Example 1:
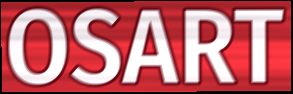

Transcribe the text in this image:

OSART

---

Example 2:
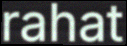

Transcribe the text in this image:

rahat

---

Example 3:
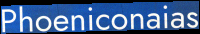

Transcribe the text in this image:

Phoeniconaias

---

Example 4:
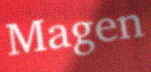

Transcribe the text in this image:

Magen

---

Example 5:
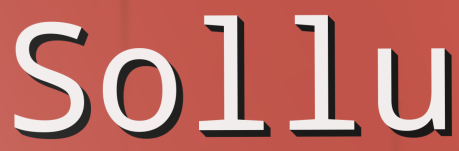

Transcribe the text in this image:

Sollu